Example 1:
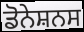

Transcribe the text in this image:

ਡੋਨੇਸ਼ਨਸ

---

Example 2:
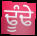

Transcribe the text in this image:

ਢੂੰਢੇ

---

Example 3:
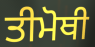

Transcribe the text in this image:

ਤੀਮੋਥੀ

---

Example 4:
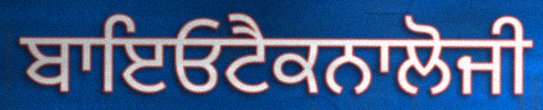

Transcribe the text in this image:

ਬਾਇਓਟੈਕਨਾਲੋਜੀ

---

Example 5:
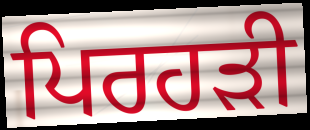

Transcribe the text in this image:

ਪਿਰਹੜੀ